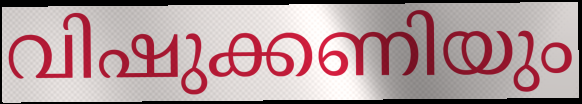
വിഷുക്കണിയും